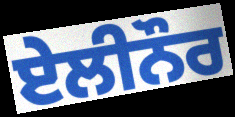
ਏਲੀਨੌਰ